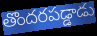
తొందరపడ్డాడు